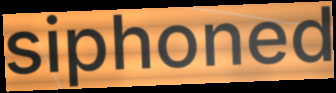
siphoned